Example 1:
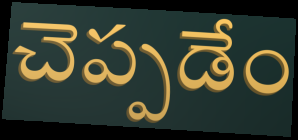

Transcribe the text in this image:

చెప్పడేం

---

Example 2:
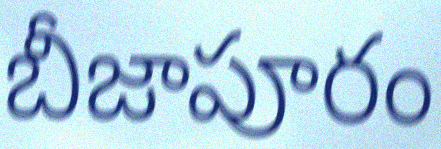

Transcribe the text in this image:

బీజాపూరం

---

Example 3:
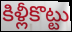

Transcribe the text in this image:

కిళ్లీకొట్టు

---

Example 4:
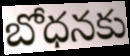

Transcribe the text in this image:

బోధనకు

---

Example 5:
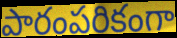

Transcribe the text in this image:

పారంపరికంగా